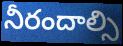
నీరందాల్సి